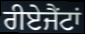
ਰੀਏਜੈਂਟਾਂ